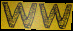
WW